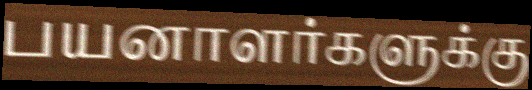
பயனாளர்களுக்கு